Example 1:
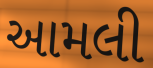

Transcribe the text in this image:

આમલી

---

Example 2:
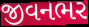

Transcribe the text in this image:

જીવનભર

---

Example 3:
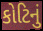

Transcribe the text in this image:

કોટિનું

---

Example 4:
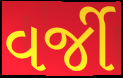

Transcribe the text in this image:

વર્જી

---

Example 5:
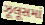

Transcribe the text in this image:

ઝૂલૂસમાં